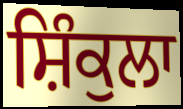
ਸ਼ਿੰਕੁਲਾ